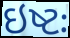
ઇષ્ટઃ